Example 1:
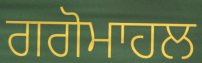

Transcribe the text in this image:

ਗਗੋਮਾਹਲ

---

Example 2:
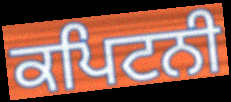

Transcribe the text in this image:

ਕਪਿਟਨੀ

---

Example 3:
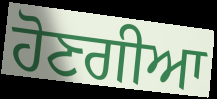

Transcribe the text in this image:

ਹੋਣਗੀਆ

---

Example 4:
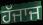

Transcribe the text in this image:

ਹੱਜਾਜ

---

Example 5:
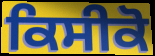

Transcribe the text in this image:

ਕਿਸੀਕੋ